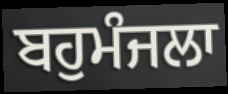
ਬਹੁਮੰਜਲਾ